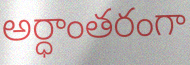
అర్ధాంతరంగా